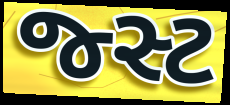
જ્સ્ટ